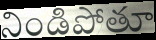
నిండిపోతూ